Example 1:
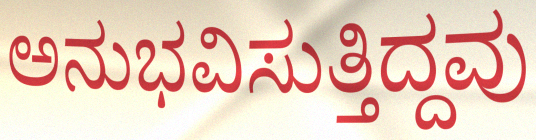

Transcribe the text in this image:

ಅನುಭವಿಸುತ್ತಿದ್ದವು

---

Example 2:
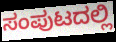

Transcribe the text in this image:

ಸಂಪುಟದಲ್ಲಿ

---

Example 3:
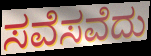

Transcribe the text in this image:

ಸವೆಸವೆದು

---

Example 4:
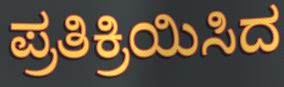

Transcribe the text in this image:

ಪ್ರತಿಕ್ರಿಯಿಸಿದ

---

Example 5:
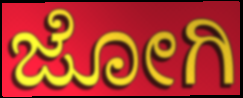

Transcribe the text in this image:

ಜೋಗಿ